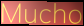
Mucho